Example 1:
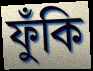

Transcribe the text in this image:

ফুঁকি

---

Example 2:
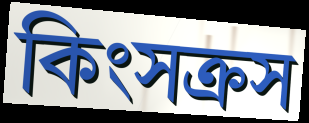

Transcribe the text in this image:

কিংসক্রস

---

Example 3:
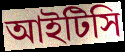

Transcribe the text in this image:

আইটিসি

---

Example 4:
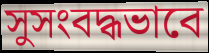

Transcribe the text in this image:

সুসংবদ্ধভাবে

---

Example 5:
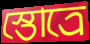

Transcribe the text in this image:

স্তোত্রে